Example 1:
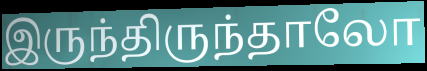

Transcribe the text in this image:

இருந்திருந்தாலோ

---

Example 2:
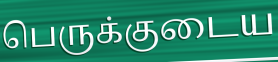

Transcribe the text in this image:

பெருக்குடைய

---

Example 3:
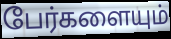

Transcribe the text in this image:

பேர்களையும்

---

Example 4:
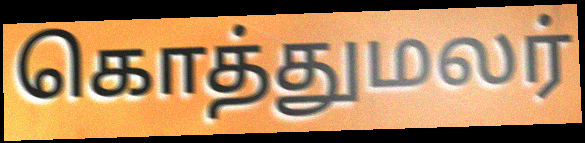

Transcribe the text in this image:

கொத்துமலர்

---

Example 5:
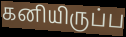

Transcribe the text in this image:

கனியிருப்ப